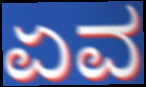
ಏವ